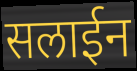
सलाईन